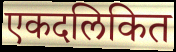
एकदलिकित